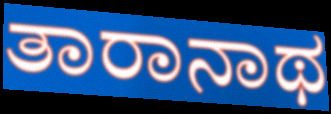
ತಾರಾನಾಥ